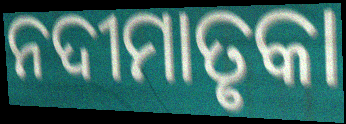
ନଦୀମାତୃକା